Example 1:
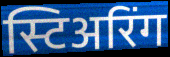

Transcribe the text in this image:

स्टिअरिंग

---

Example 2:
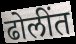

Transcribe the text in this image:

ढोलींत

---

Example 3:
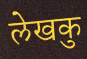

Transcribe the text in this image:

लेखकु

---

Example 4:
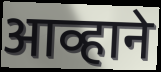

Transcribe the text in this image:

आव्हाने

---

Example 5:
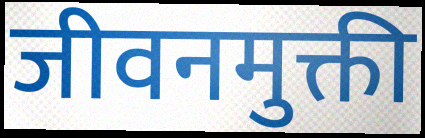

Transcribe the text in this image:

जीवनमुक्ती